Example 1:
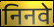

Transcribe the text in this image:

निनवे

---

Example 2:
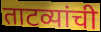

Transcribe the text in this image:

ताटव्यांची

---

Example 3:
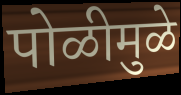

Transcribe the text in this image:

पोळीमुळे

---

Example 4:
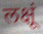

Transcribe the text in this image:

लक्षूं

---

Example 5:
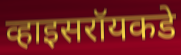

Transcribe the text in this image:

व्हाइसरॉयकडे